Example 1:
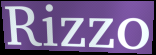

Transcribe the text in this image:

Rizzo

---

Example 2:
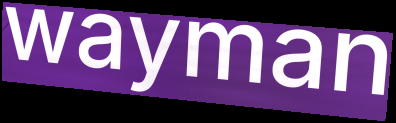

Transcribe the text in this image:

wayman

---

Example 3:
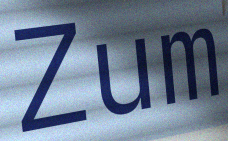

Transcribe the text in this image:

Zum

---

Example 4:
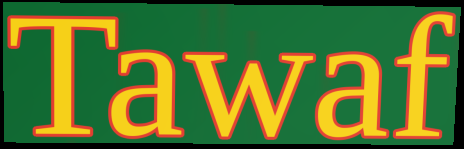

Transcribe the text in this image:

Tawaf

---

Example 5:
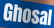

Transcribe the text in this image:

Ghosal